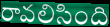
రావలిసింది